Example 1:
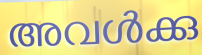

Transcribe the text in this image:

അവൾക്കു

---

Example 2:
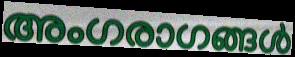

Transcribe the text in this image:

അംഗരാഗങ്ങൾ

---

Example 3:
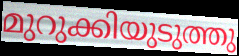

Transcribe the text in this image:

മുറുക്കിയുടുത്തു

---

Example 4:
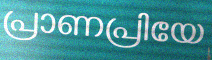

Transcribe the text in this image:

പ്രാണപ്രിയേ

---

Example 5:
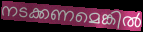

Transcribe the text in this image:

നടക്കണമെങ്കിൽ